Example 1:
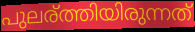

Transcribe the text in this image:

പുലര്ത്തിയിരുന്നത്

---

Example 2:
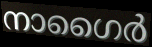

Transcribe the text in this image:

നാഗൈർ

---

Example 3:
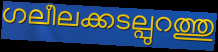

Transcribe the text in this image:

ഗലീലക്കടല്പുറത്തു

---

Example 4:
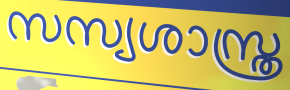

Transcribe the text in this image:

സസ്യശാസ്ത്ര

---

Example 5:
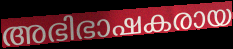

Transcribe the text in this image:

അഭിഭാഷകരായ